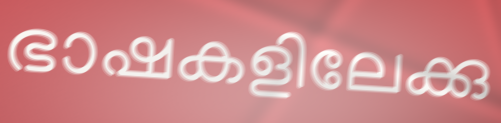
ഭാഷകളിലേക്കു